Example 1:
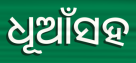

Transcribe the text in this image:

ଧୂଆଁସହ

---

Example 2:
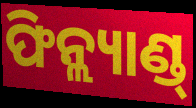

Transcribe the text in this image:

ଫିନ୍ଲ୍ୟାଣ୍ଡ୍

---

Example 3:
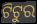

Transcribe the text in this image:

ଟିଟୁର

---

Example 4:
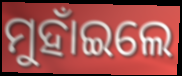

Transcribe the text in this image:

ମୁହାଁଇଲେ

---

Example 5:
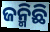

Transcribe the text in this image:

ଜନ୍ମିଛି